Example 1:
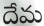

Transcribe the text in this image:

దేమ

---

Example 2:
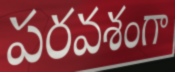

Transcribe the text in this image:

పరవశంగా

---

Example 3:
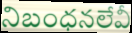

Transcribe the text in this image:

నిబంధనలేవీ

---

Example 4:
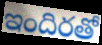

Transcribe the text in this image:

ఇందిరతో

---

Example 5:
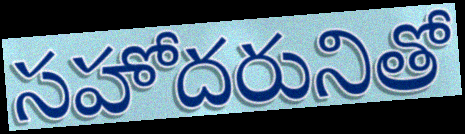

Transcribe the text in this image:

సహోదరునితో